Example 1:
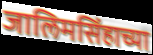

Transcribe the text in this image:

जालिमसिंहाच्या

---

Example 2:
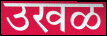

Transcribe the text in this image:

उखळ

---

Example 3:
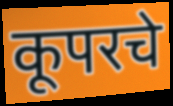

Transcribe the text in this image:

कूपरचे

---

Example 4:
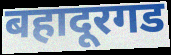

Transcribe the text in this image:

बहादूरगड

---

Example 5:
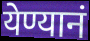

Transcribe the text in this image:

येण्यानं